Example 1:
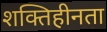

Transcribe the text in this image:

शक्तिहीनता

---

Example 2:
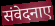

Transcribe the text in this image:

संवेदनाए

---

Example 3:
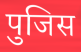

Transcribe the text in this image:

पुजिस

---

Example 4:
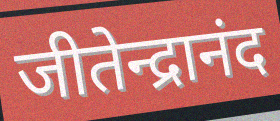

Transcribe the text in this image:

जीतेन्द्रानंद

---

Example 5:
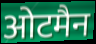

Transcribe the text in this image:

ओटमैन